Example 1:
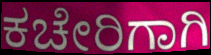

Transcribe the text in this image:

ಕಚೇರಿಗಾಗಿ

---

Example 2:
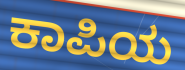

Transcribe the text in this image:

ಕಾಪಿಯ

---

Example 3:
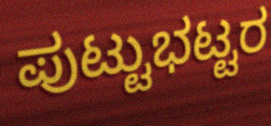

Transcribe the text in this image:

ಪುಟ್ಟುಭಟ್ಟರ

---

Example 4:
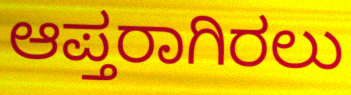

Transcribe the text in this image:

ಆಪ್ತರಾಗಿರಲು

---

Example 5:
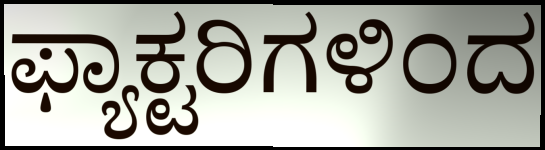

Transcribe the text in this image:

ಫ್ಯಾಕ್ಟರಿಗಳಿಂದ